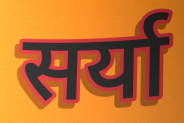
सर्या